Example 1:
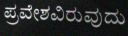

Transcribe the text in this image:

ಪ್ರವೇಶವಿರುವುದು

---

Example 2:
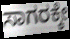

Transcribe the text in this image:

ಸಾಗರಕ್ಕೇ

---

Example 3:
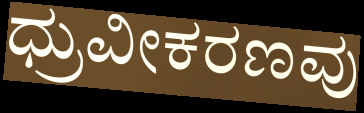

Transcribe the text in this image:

ಧ್ರುವೀಕರಣವು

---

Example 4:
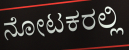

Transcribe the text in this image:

ನೋಟಕರಲ್ಲಿ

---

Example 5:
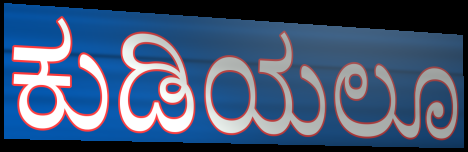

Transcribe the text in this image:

ಕುಡಿಯಲೂ